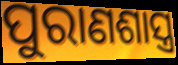
ପୁରାଣଶାସ୍ତ୍ର